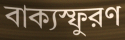
বাক্যস্ফুরণ